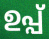
ഉപ്പ്